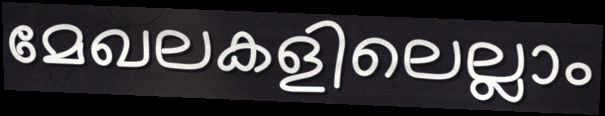
മേഖലകളിലെല്ലാം